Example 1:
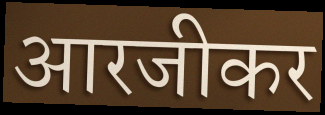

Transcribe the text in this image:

आरजीकर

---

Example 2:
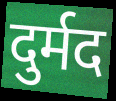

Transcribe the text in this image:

दुर्मद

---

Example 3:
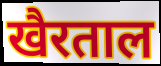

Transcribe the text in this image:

खैरताल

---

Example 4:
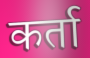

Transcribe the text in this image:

कर्ता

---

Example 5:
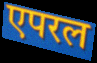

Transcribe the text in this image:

एपरल